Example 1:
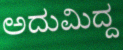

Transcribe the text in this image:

ಅದುಮಿದ್ದ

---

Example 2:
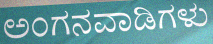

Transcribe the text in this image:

ಅಂಗನವಾಡಿಗಳು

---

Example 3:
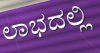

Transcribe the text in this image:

ಲಾಭದಲ್ಲಿ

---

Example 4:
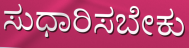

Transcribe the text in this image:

ಸುಧಾರಿಸಬೇಕು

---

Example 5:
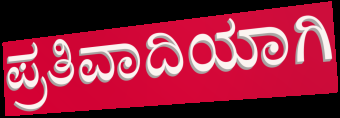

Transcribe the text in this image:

ಪ್ರತಿವಾದಿಯಾಗಿ